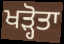
ਖੜ੍ਹੋਤਾ